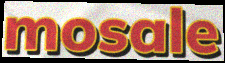
mosale